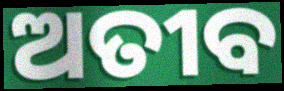
ଅତୀବ